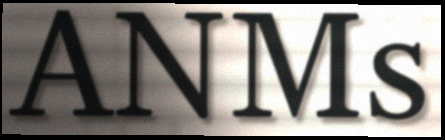
ANMs